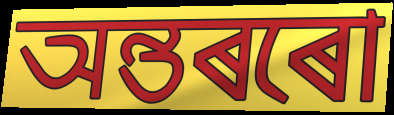
অন্তৰৰো